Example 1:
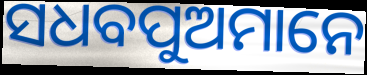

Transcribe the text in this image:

ସଧବପୁଅମାନେ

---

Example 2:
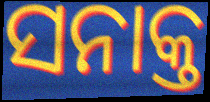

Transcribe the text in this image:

ସନାକ୍ତ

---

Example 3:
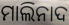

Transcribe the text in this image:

ମାଲିନାଦ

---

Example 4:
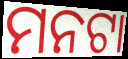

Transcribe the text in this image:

ମନଟା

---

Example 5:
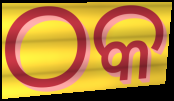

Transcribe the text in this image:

ଠକ